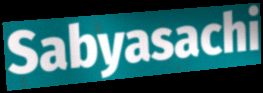
Sabyasachi